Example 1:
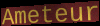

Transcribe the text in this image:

Ameteur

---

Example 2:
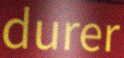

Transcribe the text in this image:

durer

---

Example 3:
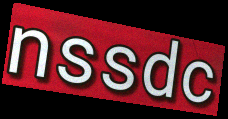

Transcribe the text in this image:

nssdc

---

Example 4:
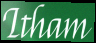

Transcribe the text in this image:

Itham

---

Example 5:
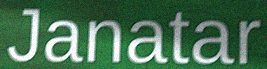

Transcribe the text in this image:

Janatar